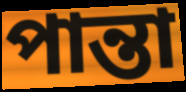
পান্তা